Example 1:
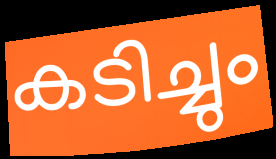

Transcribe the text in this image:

കടിച്ചും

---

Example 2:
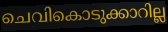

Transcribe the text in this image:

ചെവികൊടുക്കാറില്ല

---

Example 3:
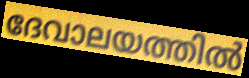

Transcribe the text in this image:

ദേവാലയത്തിൽ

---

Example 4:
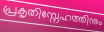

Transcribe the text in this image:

പ്രകൃതിസ്നേഹത്തിനും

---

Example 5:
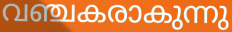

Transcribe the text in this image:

വഞ്ചകരാകുന്നു